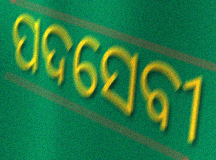
ପଦସେବୀ